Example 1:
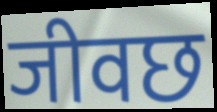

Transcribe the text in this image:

जीवछ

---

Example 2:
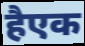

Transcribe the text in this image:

हैएक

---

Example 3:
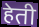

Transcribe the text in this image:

हेती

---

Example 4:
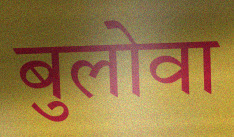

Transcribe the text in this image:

बुलोवा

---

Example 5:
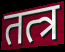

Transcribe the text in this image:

तत्त्र